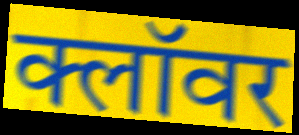
क्लॉवर